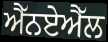
ਐੱਨਏਐੱਲ